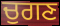
ਚੁਗਣ